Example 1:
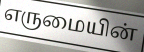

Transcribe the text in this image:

எருமையின்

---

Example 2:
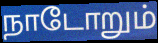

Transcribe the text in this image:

நாடோறும்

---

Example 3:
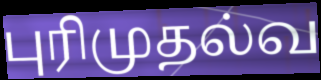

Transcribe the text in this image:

புரிமுதல்வ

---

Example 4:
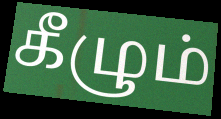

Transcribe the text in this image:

கீழும்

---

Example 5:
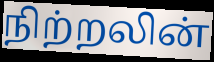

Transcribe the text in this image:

நிற்றலின்